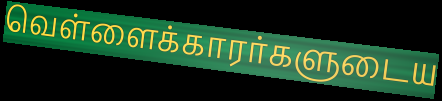
வெள்ளைக்காரர்களுடைய